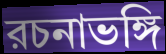
রচনাভঙ্গি